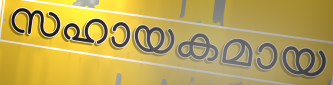
സഹായകമായ